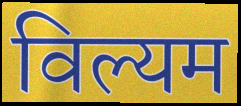
विल्यम